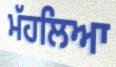
ਮੱਹਲਿਆ